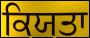
ਕਿਯਤਾ